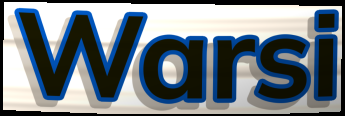
Warsi